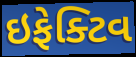
ઇફેક્ટિવ